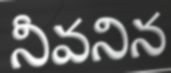
నీవనిన